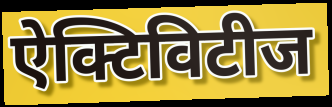
ऐक्टिविटीज